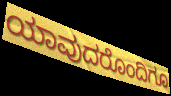
ಯಾವುದರೊಂದಿಗೂ